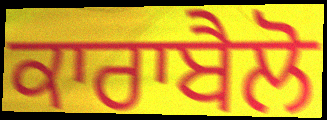
ਕਾਰਾਬੈਲੋ